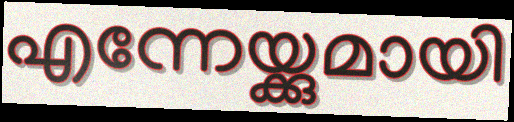
എന്നേയ്ക്കുമായി